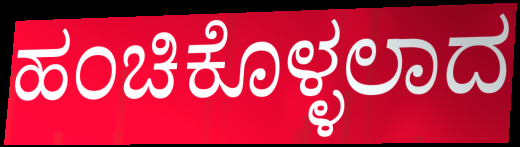
ಹಂಚಿಕೊಳ್ಳಲಾದ